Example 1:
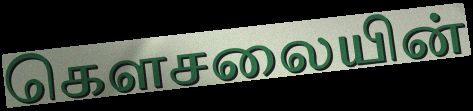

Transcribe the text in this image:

கௌசலையின்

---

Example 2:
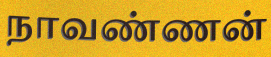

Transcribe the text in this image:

நாவண்ணன்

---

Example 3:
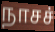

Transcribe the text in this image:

நாசச்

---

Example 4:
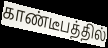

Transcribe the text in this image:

காண்டீபத்தில்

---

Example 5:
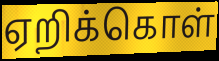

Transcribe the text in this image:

ஏறிக்கொள்